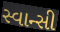
સ્વાન્સી